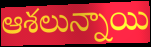
ఆశలున్నాయి